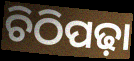
ଚିଠିପଢ଼ା